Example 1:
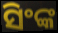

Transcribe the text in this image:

ସିଂଙ୍କ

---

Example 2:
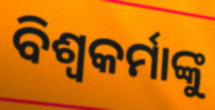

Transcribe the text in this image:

ବିଶ୍ଵକର୍ମାଙ୍କୁ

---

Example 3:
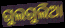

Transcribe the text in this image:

ଗୁଲଗୁଲିଆ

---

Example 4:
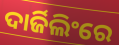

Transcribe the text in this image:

ଦାର୍ଜିଲିଂରେ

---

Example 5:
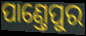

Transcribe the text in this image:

ପାଣ୍ତେପୁର